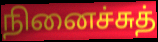
நினைச்சுத்